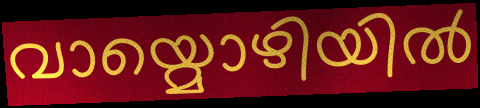
വായ്മൊഴിയിൽ